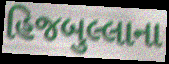
હિજબુલ્લાના